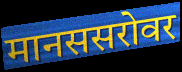
मानससरोवर